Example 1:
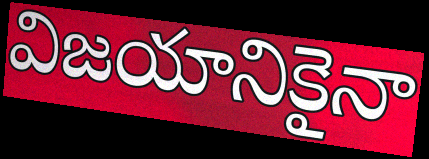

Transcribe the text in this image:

విజయానికైనా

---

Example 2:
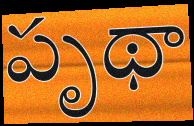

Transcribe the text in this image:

పృథా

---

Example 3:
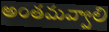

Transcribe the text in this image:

అంతమవ్వాలి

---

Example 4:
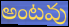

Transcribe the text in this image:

అంటవు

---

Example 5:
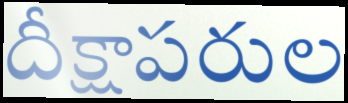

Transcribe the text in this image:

దీక్షాపరుల